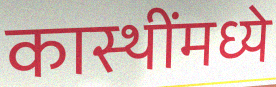
कास्थींमध्ये